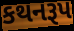
કથનરૂપ